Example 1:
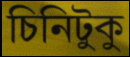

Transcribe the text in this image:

চিনিটুকু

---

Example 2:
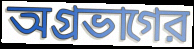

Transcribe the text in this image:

অগ্রভাগের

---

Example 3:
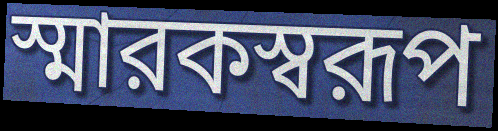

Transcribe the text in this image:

স্মারকস্বরূপ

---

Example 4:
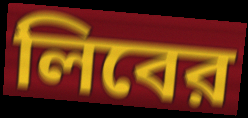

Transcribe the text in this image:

লিবের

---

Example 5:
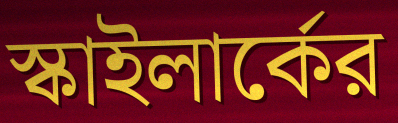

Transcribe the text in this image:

স্কাইলার্কের